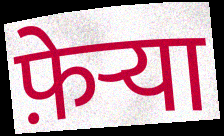
फ़ेर्‍या